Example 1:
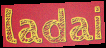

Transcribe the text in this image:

ladai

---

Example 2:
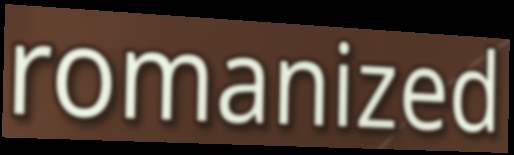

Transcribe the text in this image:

romanized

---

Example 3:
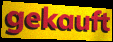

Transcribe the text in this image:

gekauft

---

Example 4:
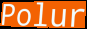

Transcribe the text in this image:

Polur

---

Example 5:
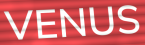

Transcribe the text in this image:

VENUS